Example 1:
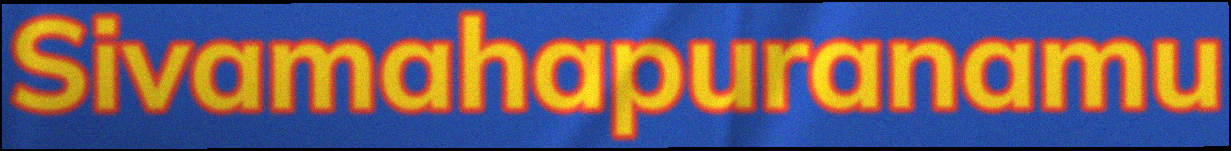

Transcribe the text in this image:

Sivamahapuranamu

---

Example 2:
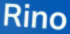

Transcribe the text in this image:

Rino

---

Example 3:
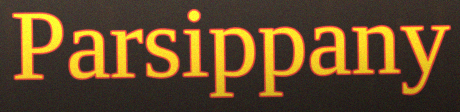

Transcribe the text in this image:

Parsippany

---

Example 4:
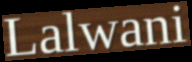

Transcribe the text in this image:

Lalwani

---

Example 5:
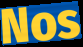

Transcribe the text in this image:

Nos